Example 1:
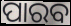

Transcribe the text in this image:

ପାରବ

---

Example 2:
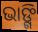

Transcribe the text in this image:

ଭାଙ୍ଗି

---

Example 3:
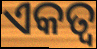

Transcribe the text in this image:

ଏକତ୍ୱ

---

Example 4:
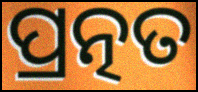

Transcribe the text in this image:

ପ୍ରତ୍ନତ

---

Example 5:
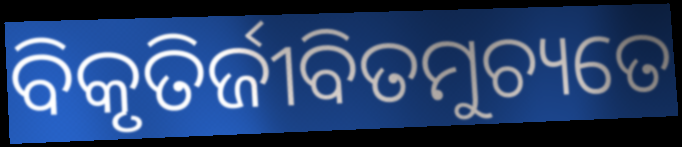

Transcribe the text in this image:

ବିକୃତିର୍ଜୀବିତମୁଚ୍ୟତେ